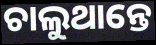
ଚାଲୁଥାନ୍ତେ